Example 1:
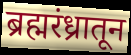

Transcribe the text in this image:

ब्रह्मरंध्रातून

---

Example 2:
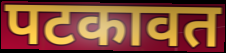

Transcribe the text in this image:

पटकावत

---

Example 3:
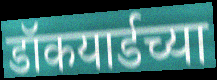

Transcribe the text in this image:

डॉकयार्डच्या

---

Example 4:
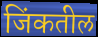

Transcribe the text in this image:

जिंकतील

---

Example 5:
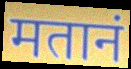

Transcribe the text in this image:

मतानं